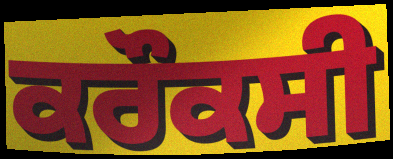
ਕਰੌਕਸੀ